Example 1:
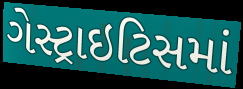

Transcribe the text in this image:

ગેસ્ટ્રાઇટિસમાં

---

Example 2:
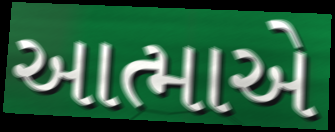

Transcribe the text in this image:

આત્માએ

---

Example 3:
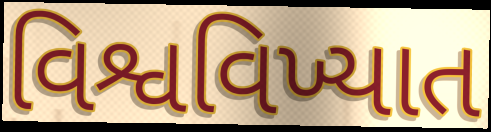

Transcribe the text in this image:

વિશ્વવિખ્યાત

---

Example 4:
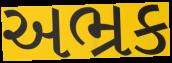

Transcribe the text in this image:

અભ્રક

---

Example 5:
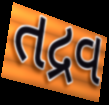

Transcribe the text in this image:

તદ્રવ